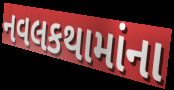
નવલકથામાંના